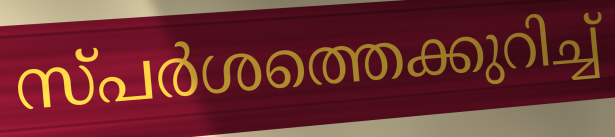
സ്പർശത്തെക്കുറിച്ച്